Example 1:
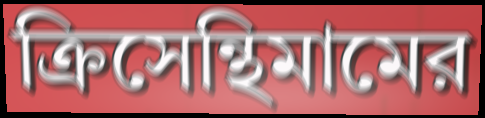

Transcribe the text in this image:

ক্রিসেন্থিমামের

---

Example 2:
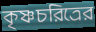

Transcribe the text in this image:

কৃষ্ণচরিত্রের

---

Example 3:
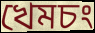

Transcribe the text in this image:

খেমচং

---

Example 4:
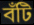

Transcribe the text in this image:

বঁটি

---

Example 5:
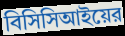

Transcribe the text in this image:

বিসিসিআইয়ের